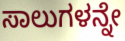
ಸಾಲುಗಳನ್ನೇ